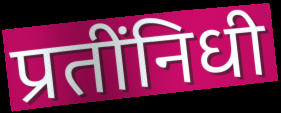
प्रतींनिधी